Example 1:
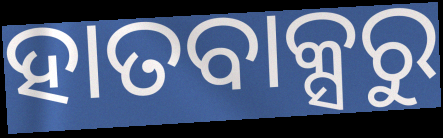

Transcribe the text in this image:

ହାତବାକ୍ସରୁ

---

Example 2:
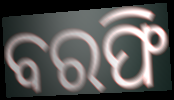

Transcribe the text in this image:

ବରଫି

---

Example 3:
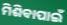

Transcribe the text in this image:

ମିଶିବାପାଇଁ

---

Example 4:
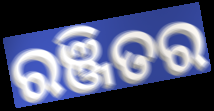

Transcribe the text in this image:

ରଞ୍ଜିତର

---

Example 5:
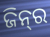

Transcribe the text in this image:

ଜିନ୍‌ର